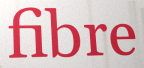
fibre